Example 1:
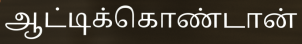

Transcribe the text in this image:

ஆட்டிக்கொண்டான்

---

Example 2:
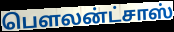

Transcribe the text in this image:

பௌலன்ட்சாஸ்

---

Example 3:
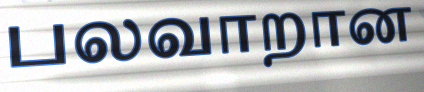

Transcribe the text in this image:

பலவாறான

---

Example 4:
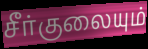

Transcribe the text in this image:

சீர்குலையும்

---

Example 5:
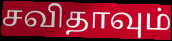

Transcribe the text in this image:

சவிதாவும்